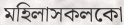
মহিলাসকলকো